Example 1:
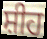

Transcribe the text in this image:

ਸ਼ੀਹ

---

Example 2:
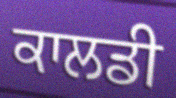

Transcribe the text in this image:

ਕਾਲਡੀ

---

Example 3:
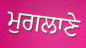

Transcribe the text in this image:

ਮੁਗਲਾਣੇ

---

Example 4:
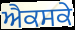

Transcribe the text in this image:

ਐਕਸਕੇ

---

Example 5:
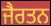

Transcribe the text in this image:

ਜੈਰਤਨ